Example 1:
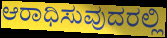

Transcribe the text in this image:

ಆರಾಧಿಸುವುದರಲ್ಲಿ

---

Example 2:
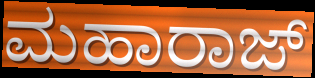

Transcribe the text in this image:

ಮಹಾರಾಜ್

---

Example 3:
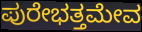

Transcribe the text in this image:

ಪುರೇಭತ್ತಮೇವ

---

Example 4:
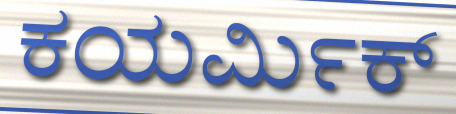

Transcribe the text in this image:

ಕಯರ್ಮಿಕ್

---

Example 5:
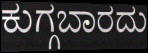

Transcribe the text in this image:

ಕುಗ್ಗಬಾರದು